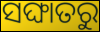
ସଙ୍ଘାତରୁ